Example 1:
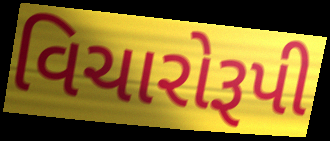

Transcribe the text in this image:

વિચારોરૂપી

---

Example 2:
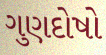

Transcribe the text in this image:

ગુણદોષો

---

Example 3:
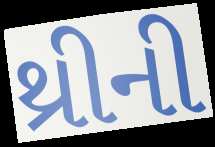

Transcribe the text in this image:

થ્રીની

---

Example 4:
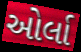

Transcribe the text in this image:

ઓર્લા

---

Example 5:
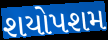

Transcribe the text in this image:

શયોપશમ